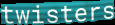
twisters